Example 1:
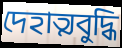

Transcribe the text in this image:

দেহাত্মবুদ্ধি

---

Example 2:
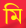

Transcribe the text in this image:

মি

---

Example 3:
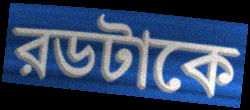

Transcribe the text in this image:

রডটাকে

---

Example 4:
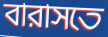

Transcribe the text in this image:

বারাসতে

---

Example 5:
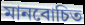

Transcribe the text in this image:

মানবোচিত